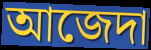
আজেদা